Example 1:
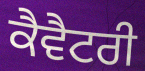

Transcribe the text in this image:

ਕੈਵੈਟਰੀ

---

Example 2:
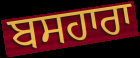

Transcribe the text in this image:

ਬਸਹਾਰਾ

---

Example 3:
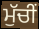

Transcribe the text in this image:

ਮੁੱਚੀਂ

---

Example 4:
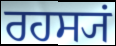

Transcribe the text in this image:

ਰਹਸ੍ਯਂ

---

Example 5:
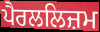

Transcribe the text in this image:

ਪੈਰਲਲਿਜ਼ਮ